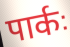
पार्कः